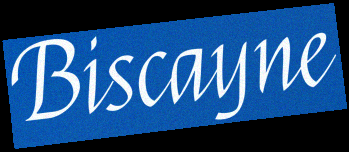
Biscayne